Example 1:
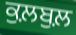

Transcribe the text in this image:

ਕੁਲ਼ਬੁਲ਼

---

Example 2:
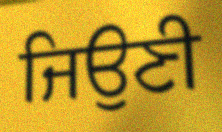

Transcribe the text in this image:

ਜਿਉਣੀ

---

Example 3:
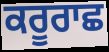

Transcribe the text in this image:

ਕਰੂਰਾਛ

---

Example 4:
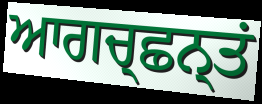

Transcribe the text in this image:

ਆਗਚ੍ਛਨ੍ਤਂ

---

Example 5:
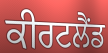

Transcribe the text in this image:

ਕੀਰਟਲੈਂਡ